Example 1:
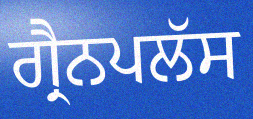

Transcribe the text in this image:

ਗ੍ਰੈਨਪਲੱਸ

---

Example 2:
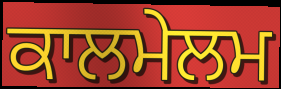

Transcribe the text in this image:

ਕਾਲਮੇਲਮ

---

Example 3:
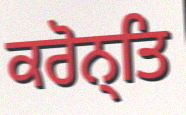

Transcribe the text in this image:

ਕਰੋਨ੍ਤਿ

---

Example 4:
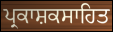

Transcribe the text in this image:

ਪ੍ਰਕਾਸ਼ਕਸਾਹਿਤ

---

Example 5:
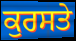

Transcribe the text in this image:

ਕੁਰਸਤੇ